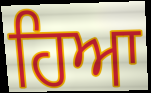
ਹਿਆ